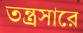
তন্ত্রসারে